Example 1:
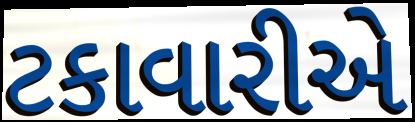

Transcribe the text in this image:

ટકાવારીએ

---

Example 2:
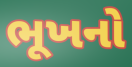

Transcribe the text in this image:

ભૂખનો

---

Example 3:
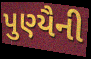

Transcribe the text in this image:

પુણ્યૈની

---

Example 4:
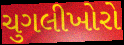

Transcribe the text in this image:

ચુગલીખોરો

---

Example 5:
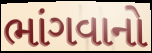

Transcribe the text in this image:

ભાંગવાનો